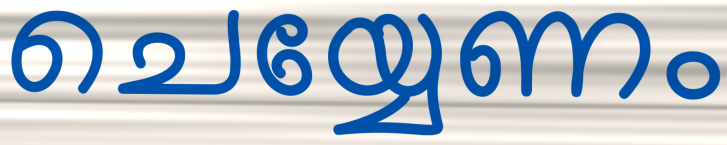
ചെയ്യേണം